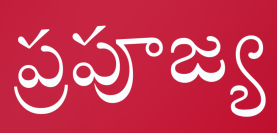
ప్రపూజ్య